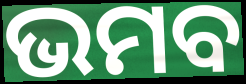
ଭମବ